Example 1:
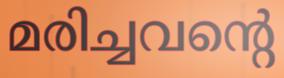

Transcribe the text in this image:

മരിച്ചവന്റെ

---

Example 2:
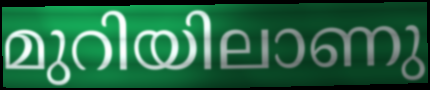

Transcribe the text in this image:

മുറിയിലാണു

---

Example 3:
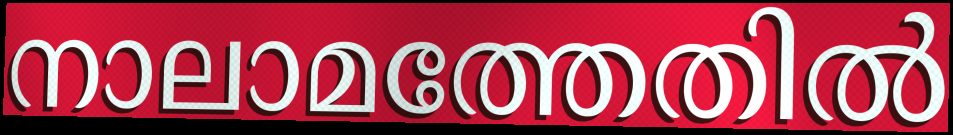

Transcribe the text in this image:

നാലാമത്തേതിൽ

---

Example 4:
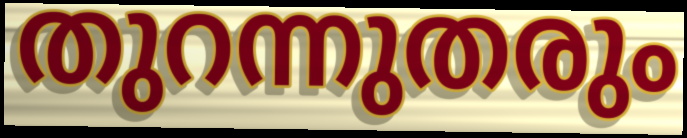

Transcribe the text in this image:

തുറന്നുതരും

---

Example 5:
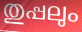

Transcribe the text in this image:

തുപ്പലും